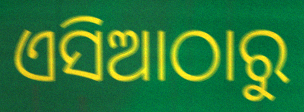
ଏସିଆଠାରୁ